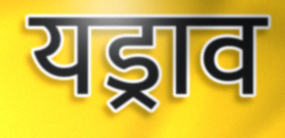
यड्राव